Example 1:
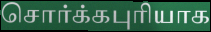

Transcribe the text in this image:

சொர்க்கபுரியாக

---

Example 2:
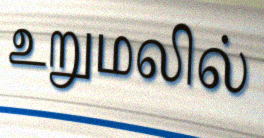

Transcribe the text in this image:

உறுமலில்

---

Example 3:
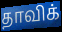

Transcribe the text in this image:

தாவிக்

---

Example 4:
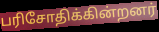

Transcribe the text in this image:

பரிசோதிக்கின்றனர்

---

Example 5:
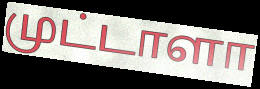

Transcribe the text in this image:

முட்டாளா